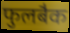
फुलबैक